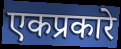
एकप्रकारे